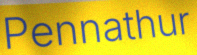
Pennathur